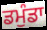
ਡਮੁੰਡਾ